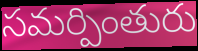
సమర్పింతురు